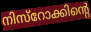
നിസ്റോക്കിന്റെ